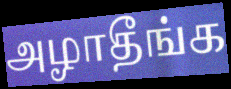
அழாதீங்க